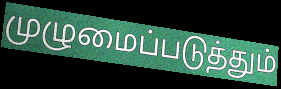
முழுமைப்படுத்தும்